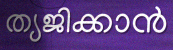
ത്യജിക്കാൻ